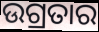
ଉଗ୍ରତାର